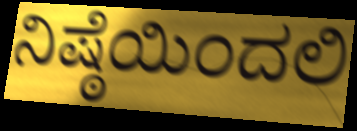
ನಿಷ್ಠೆಯಿಂದಲಿ